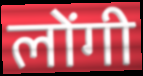
लोंगी